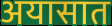
अयासात